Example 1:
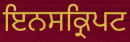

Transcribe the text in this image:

ਇਨਸਕ੍ਰਿਪਟ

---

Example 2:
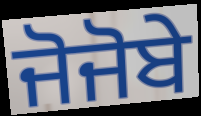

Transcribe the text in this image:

ਜੋਜੋਬੇ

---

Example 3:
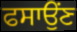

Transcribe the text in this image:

ਫਸਾਉਂਣ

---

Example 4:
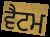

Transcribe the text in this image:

ਵੈਟਮ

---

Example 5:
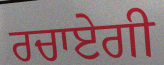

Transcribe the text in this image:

ਰਚਾਏਗੀ